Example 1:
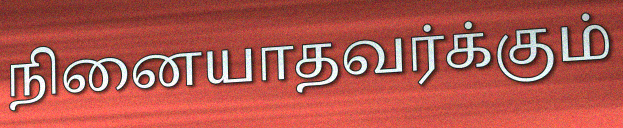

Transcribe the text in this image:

நினையாதவர்க்கும்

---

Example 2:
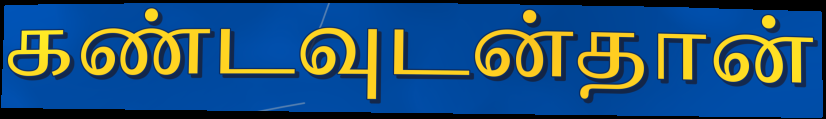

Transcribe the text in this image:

கண்டவுடன்தான்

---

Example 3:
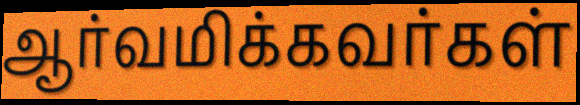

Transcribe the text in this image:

ஆர்வமிக்கவர்கள்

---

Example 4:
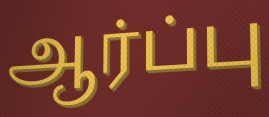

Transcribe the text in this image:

ஆர்ப்பு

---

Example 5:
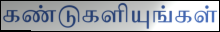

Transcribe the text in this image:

கண்டுகளியுங்கள்